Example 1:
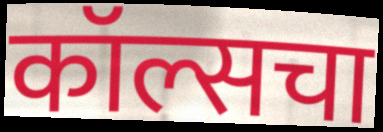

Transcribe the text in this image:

कॉल्सचा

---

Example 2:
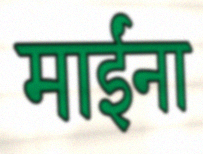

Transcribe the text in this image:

माईंना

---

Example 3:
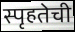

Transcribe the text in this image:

स्पृहतेची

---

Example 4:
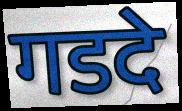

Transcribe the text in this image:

गडदे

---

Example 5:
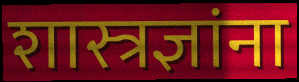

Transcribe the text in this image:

शास्त्रज्ञांना